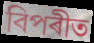
বিপৰীত